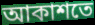
আকাশতে